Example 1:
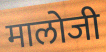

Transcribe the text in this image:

मालोजी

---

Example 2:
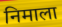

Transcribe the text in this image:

निमाला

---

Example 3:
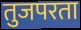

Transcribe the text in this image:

तुजपरता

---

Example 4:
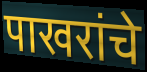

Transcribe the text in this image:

पाखरांचे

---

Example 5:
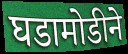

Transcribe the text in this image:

घडामोडीने